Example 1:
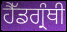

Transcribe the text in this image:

ਹੈੱਡਗ੍ਰੰਥੀ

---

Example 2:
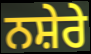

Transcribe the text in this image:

ਨਸ਼ੇਰੇ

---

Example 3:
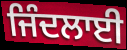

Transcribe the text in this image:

ਜਿੰਦਲਾਈ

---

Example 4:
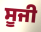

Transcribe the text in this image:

ਸੂਜੀ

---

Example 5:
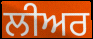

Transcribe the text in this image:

ਲੀਅਰ